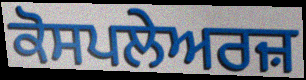
ਕੋਸਪਲੇਅਰਜ਼